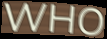
WHO